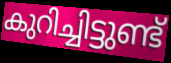
കുറിച്ചിട്ടുണ്ട്